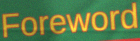
Foreword